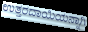
ಉತ್ತರದಾಯಿಯನ್ನಾಗಿ